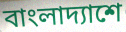
বাংলাদ্যাশে